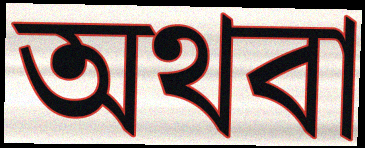
অথবা